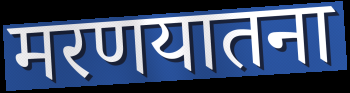
मरणयातना